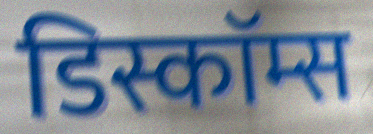
डिस्कॉम्स